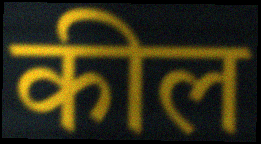
कील